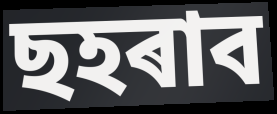
ছহৰাব